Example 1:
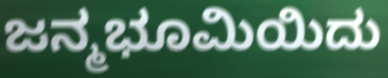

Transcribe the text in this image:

ಜನ್ಮಭೂಮಿಯಿದು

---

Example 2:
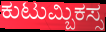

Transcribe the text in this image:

ಕುಟುಮ್ಬಿಕಸ್ಸ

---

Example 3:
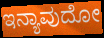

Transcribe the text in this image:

ಇನ್ಯಾವುದೋ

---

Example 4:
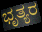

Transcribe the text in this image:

ಭೃತ್ಯರ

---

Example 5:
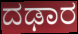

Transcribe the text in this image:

ದಢಾರ